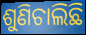
ଶୁଣିଚାଲିଛି